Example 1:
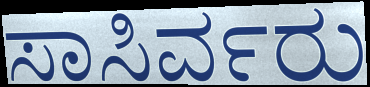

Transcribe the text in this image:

ಸಾಸಿರ್ವರು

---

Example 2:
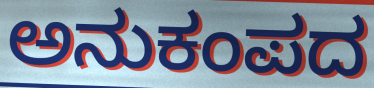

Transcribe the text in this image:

ಅನುಕಂಪದ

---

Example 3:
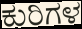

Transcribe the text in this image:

ಕುರಿಗಳ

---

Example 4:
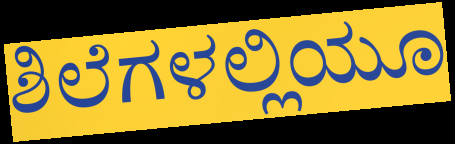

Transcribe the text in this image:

ಶಿಲೆಗಳಲ್ಲಿಯೂ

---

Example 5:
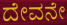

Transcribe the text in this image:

ದೇವನೇ